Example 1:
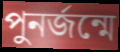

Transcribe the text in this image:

পুনর্জন্মে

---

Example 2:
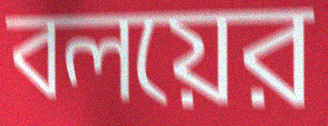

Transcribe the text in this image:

বলয়ের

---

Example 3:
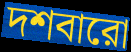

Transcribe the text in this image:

দশবারো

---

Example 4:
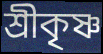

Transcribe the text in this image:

শ্রীকৃষ্ণ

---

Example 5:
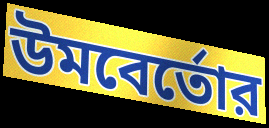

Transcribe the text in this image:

উমবের্তোর